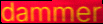
dammer